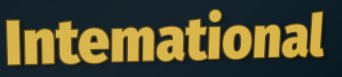
Intemational